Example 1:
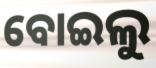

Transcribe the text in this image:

ବୋଇଲୁ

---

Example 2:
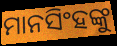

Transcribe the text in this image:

ମାନସିଂହଙ୍କୁ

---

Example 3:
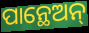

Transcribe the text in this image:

ପାନ୍ଥେଅନ୍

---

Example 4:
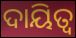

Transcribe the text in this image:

ଦାୟିତ୍ବ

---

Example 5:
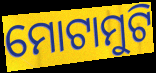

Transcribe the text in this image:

ମୋଟାମୁଟି